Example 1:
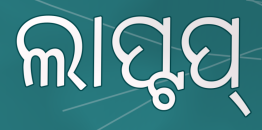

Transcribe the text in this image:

ଲାପ୍ଟପ୍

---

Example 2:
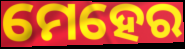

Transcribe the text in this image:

ମେହେର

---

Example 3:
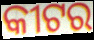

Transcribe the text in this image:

କୀଟର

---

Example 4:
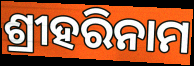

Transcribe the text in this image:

ଶ୍ରୀହରିନାମ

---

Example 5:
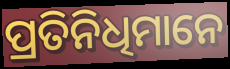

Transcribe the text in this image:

ପ୍ରତିନିଧିମାନେ